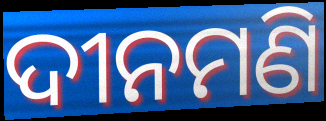
ଦୀନମଣି